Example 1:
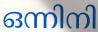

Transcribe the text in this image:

ഒന്നിനി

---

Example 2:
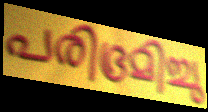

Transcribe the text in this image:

പരിഭ്രമിച്ചു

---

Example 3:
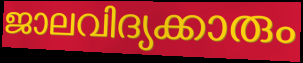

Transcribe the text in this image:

ജാലവിദ്യക്കാരും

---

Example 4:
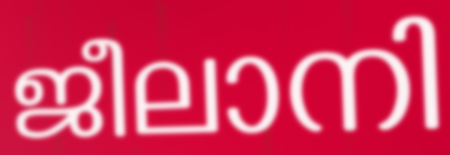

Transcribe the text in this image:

ജീലാനി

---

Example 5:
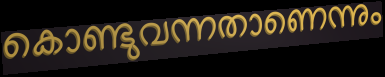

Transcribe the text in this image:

കൊണ്ടുവന്നതാണെന്നും